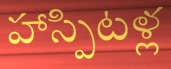
హాస్పిటళ్ల